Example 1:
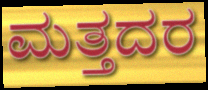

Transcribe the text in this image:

ಮತ್ತದರ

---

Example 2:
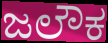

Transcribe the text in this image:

ಜಲೌಕ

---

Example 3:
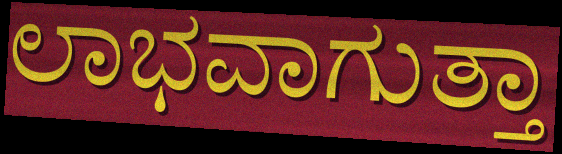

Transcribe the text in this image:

ಲಾಭವಾಗುತ್ತಾ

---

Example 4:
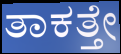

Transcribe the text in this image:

ತಾಕತ್ತೇ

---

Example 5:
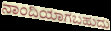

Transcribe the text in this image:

ನಾಂದಿಯಾಗಬಹುದು